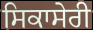
ਸਿਕਾਸੇਰੀ